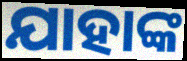
ଯାହାଙ୍କ